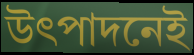
উৎপাদনেই